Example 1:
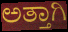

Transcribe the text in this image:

ಅತ್ತಾಗಿ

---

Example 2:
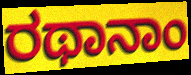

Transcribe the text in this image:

ರಥಾನಾಂ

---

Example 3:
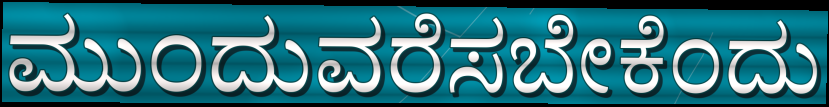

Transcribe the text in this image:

ಮುಂದುವರೆಸಬೇಕೆಂದು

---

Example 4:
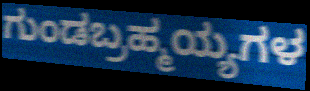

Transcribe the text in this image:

ಗುಂಡಬ್ರಹ್ಮಯ್ಯಗಳ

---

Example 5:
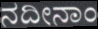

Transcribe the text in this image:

ನದೀನಾಂ